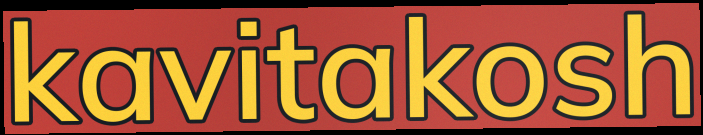
kavitakosh